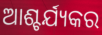
ଆଶ୍ଚର୍ଯ୍ୟକର